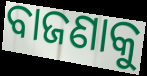
ବାଜଣାକୁ